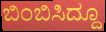
ಬಿಂಬಿಸಿದ್ದೂ